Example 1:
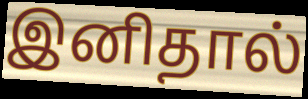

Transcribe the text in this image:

இனிதால்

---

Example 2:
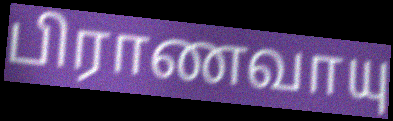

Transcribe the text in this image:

பிராணவாயு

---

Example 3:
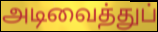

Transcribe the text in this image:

அடிவைத்துப்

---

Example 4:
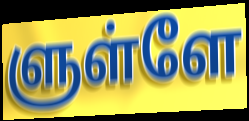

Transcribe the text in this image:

ளுள்ளே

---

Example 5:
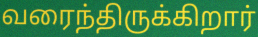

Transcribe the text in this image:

வரைந்திருக்கிறார்